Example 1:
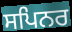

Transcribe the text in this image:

ਸਪਿਨਰ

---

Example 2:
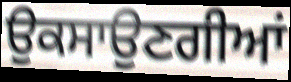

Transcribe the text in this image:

ਉਕਸਾਉਣਗੀਆਂ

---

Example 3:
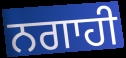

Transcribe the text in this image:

ਨਗਾਹੀ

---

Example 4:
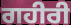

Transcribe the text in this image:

ਗਹੀਰੀ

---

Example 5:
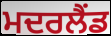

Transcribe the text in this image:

ਮਦਰਲੈਂਡ